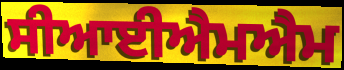
ਸੀਆਈਐਮਐਮ